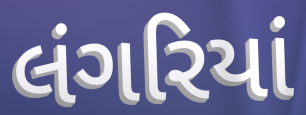
લંગરિયાં